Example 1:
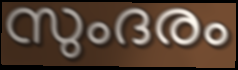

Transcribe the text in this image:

സുംദരം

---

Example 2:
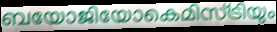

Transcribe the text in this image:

ബയോജിയോകെമിസ്ട്രിയും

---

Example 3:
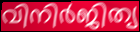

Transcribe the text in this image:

വിനിർജിത്യ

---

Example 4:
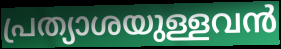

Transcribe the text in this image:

പ്രത്യാശയുള്ളവൻ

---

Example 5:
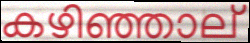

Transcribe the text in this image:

കഴിഞ്ഞാല്